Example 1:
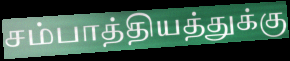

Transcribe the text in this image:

சம்பாத்தியத்துக்கு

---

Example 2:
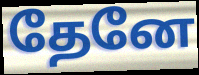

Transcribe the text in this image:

தேனே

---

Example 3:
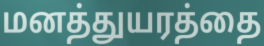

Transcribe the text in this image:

மனத்துயரத்தை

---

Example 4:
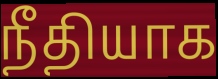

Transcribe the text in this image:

நீதியாக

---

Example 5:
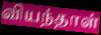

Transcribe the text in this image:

வியந்தாள்